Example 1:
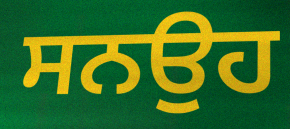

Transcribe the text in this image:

ਸਨਉਹ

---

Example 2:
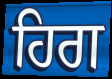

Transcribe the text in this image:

ਹਿਗ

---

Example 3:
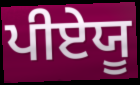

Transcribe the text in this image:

ਪੀਏਯੂ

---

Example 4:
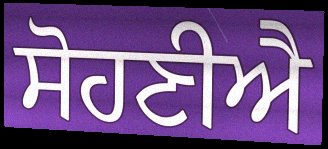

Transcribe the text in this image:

ਸੋਹਣੀਐ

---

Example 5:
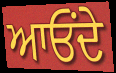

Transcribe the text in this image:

ਆਓਂਦੇ